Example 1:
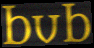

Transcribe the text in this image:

bub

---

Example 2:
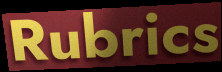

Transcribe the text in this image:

Rubrics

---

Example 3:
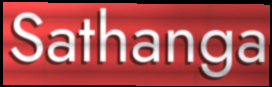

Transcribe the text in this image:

Sathanga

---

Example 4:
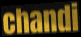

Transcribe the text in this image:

chandi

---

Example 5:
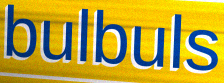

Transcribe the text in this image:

bulbuls